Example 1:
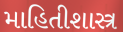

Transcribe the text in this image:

માહિતીશાસ્ત્ર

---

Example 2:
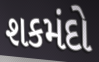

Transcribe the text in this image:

શકમંદો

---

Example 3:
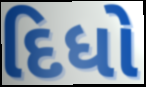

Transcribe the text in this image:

દિધો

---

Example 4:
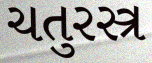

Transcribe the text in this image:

ચતુરસ્ત્ર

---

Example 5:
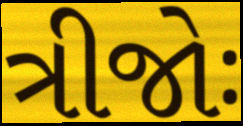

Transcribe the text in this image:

ત્રીજોઃ